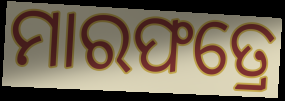
ମାରଫତ୍ରେ